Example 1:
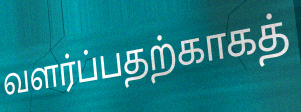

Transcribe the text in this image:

வளர்ப்பதற்காகத்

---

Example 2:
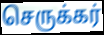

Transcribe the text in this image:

செருக்கர்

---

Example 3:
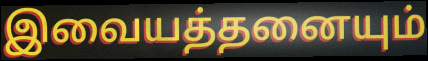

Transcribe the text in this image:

இவையத்தனையும்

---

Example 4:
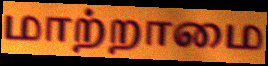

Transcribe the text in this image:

மாற்றாமை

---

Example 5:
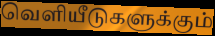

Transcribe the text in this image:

வெளியீடுகளுக்கும்